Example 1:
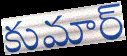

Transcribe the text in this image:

కుమార్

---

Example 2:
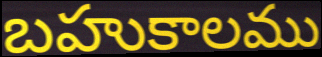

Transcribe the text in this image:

బహుకాలము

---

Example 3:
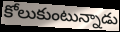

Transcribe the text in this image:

కోలుకుంటున్నాడు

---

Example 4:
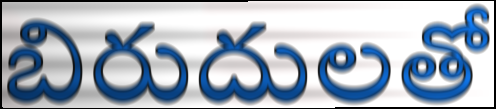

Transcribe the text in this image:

బిరుదులతో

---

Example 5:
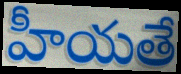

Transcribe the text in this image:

హీయతే